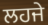
ਲਹਜੇ